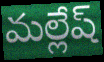
మల్లేష్